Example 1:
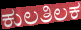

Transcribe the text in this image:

ಕುಲತಿಲಕ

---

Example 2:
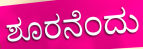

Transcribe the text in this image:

ಶೂರನೆಂದು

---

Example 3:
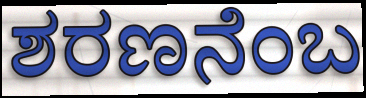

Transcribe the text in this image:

ಶರಣನೆಂಬ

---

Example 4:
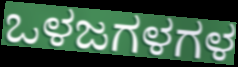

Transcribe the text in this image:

ಒಳಜಗಳಗಳ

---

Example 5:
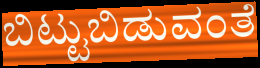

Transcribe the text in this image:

ಬಿಟ್ಟುಬಿಡುವಂತೆ